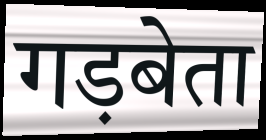
गड़बेता